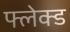
फ्लेक्ड